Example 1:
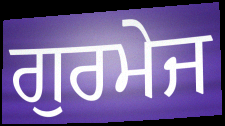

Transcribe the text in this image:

ਗੁਰਮੇਜ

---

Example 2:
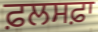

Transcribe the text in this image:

ਫ਼ਲਸਫ਼ਾ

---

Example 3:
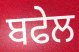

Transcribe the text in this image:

ਬਫੇਲ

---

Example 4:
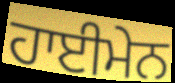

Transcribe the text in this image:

ਹਾਈਮੇਨ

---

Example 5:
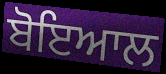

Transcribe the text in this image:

ਬੋਇਆਲ